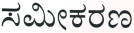
ಸಮೀಕರಣ